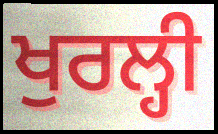
ਖੁਰਲ੍ਹੀ